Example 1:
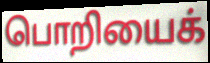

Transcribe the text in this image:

பொறியைக்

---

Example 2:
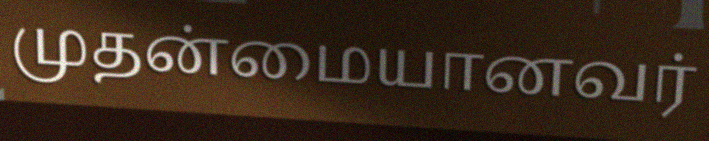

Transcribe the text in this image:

முதன்மையானவர்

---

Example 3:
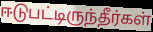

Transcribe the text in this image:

ஈடுபட்டிருந்தீர்கள்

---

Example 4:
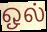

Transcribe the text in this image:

ஒல்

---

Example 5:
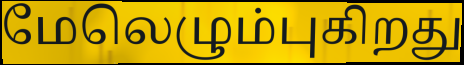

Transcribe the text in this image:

மேலெழும்புகிறது